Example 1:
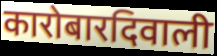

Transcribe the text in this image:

कारोबारदिवाली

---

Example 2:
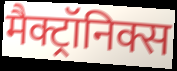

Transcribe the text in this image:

मैक्ट्रॉनिक्स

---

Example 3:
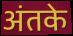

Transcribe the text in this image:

अंतके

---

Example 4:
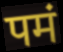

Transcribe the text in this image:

पमं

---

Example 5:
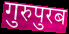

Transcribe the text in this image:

गुरुपुरब